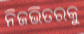
ନିଜଭିତରକୁ